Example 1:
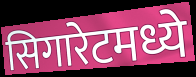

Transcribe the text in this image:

सिगारेटमध्ये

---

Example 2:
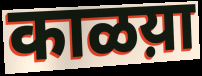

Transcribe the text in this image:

काळय़ा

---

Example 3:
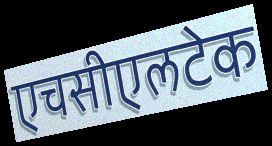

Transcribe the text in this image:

एचसीएलटेक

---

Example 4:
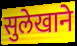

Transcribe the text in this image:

सुलेखाने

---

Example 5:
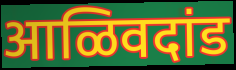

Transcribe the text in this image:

आळिवदांड